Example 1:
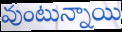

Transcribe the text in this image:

వుంటున్నాయి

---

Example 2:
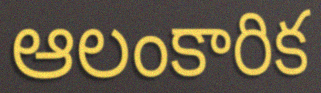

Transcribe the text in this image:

ఆలంకారిక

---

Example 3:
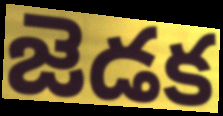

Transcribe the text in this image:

జెడక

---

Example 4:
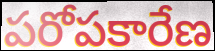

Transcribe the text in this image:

పరోపకారేణ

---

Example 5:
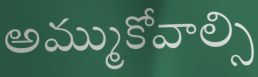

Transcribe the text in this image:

అమ్ముకోవాల్సి